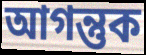
আগন্তুক